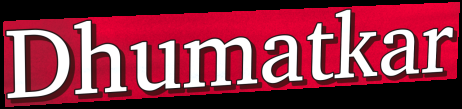
Dhumatkar